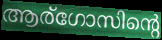
ആര്ഗോസിന്റെ